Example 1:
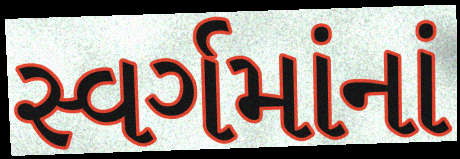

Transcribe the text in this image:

સ્વર્ગમાંનાં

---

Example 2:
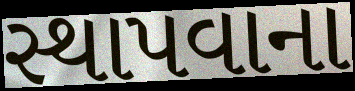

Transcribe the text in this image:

સ્થાપવાના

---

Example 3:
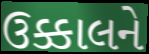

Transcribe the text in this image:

ઉક્કાલને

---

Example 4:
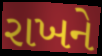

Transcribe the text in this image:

રાખને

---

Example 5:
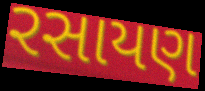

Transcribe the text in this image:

રસાયણ